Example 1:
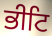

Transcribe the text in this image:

ਭੀਟਿ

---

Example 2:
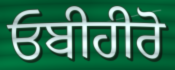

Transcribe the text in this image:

ਓਬੀਹੀਰੋ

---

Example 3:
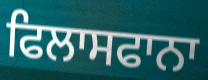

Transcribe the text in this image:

ਫਿਲਾਸਫਾਨਾ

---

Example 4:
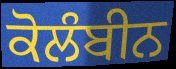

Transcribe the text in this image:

ਕੋਲੰਬੀਨ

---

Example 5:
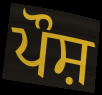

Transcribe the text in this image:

ਪੌਸ਼